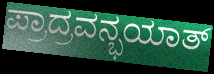
ಪ್ರಾದ್ರವನ್ಭಯಾತ್